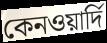
কেনওয়ার্দি